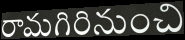
రామగిరినుంచి